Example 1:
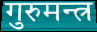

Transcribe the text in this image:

गुरुमन्त्र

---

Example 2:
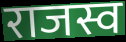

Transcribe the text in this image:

राजस्‍व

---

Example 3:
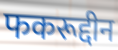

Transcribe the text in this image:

फकरूद्दीन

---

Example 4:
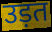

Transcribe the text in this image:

उड़त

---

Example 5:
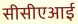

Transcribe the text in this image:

सीसीएआई